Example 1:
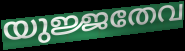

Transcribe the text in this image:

യുജ്ജതേവ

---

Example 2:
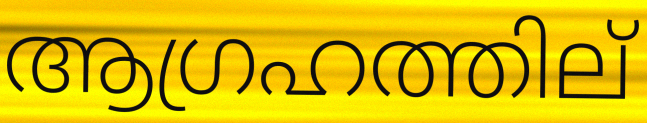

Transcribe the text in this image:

ആഗ്രഹത്തില്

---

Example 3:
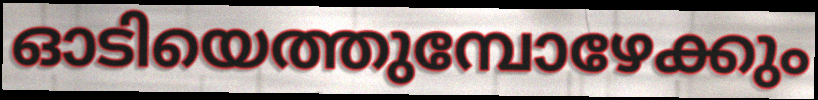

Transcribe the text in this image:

ഓടിയെത്തുമ്പോഴേക്കും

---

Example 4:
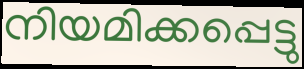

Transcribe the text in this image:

നിയമിക്കപ്പെട്ടു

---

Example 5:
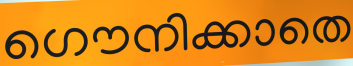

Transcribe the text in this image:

ഗൌനിക്കാതെ